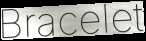
Bracelet